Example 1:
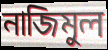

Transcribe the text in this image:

নাজিমুল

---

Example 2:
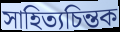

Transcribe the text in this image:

সাহিত্যচিন্তক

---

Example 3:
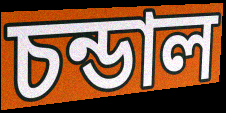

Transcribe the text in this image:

চন্ডাল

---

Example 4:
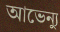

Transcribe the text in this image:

আভেন্যু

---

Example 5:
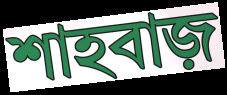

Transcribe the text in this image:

শাহবাজ়